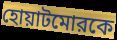
হোয়াটমোরকে